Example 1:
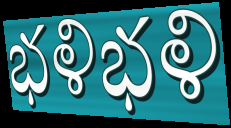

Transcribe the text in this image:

భళిభళి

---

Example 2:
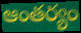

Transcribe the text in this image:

ఆంతర్యం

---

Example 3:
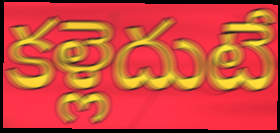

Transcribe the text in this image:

కళ్లెదుటే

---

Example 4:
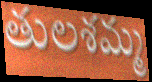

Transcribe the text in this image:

తులశమ్మ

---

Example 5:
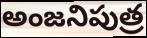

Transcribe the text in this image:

అంజనిపుత్ర